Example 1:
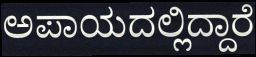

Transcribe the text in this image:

ಅಪಾಯದಲ್ಲಿದ್ದಾರೆ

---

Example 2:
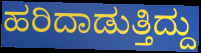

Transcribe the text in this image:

ಹರಿದಾಡುತ್ತಿದ್ದು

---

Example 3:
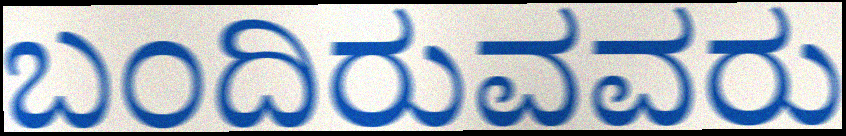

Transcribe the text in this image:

ಬಂದಿರುವವರು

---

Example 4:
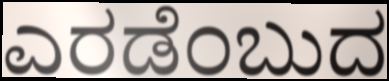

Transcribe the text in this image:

ಎರಡೆಂಬುದ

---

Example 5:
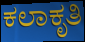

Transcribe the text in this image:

ಕಲಾಕೃತಿ